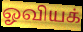
ஓவியக்